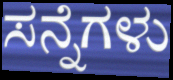
ಸನ್ನೆಗಳು